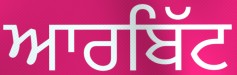
ਆਰਬਿੱਟ